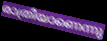
രാത്രിയാണെന്നു